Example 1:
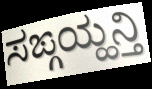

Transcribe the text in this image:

ಸಙ್ಗಯ್ಹನ್ತಿ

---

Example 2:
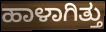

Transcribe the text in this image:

ಹಾಳಾಗಿತ್ತು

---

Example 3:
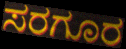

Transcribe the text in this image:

ಸರಗೂರ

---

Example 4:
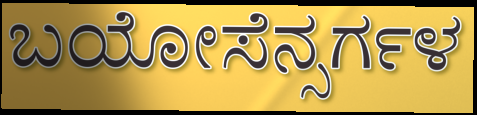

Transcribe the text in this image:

ಬಯೋಸೆನ್ಸರ್ಗಳ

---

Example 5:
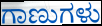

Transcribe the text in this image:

ಗಾಣುಗಳು